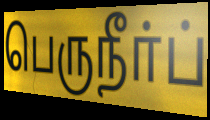
பெருநீர்ப்